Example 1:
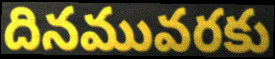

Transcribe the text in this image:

దినమువరకు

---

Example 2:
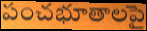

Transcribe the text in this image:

పంచభూతాలపై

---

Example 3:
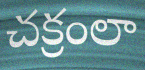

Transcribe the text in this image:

చక్రంలా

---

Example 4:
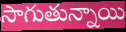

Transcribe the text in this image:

సాగుతున్నాయి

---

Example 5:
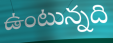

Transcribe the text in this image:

ఉంటున్నది